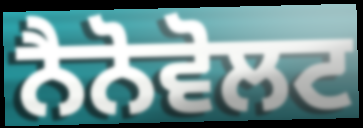
ਨੈਨੋਵੋਲਟ